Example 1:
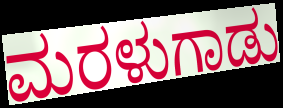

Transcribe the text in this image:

ಮರಳುಗಾಡು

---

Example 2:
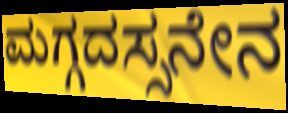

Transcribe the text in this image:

ಮಗ್ಗದಸ್ಸನೇನ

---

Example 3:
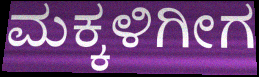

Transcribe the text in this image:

ಮಕ್ಕಳಿಗೀಗ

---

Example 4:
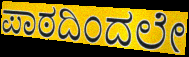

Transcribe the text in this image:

ಪಾಠದಿಂದಲೇ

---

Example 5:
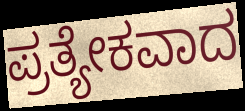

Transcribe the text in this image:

ಪ್ರತ್ಯೇಕವಾದ